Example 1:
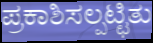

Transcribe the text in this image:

ಪ್ರಕಾಶಿಸಲ್ಪಟ್ಟಿತು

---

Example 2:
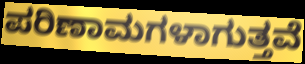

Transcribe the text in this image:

ಪರಿಣಾಮಗಳಾಗುತ್ತವೆ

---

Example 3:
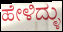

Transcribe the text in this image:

ಹೇಳಿದ್ಳು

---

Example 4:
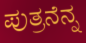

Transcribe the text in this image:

ಪುತ್ರನೆನ್ನ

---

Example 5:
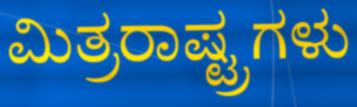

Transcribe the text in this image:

ಮಿತ್ರರಾಷ್ಟ್ರಗಳು